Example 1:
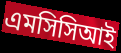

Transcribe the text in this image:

এমসিসিআই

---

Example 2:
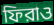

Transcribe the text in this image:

ফিরাও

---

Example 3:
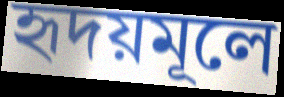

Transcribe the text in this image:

হৃদয়মূলে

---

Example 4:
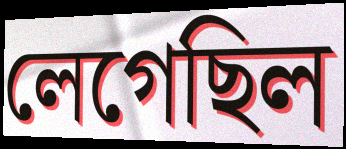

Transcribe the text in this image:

লেগেছিল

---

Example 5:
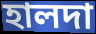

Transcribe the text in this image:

হালদা